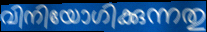
വിനിയോഗിക്കുന്നതു